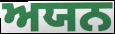
ਅਯਨ